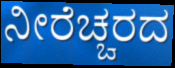
ನೀರೆಚ್ಚರದ